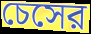
চেসের